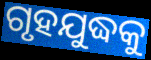
ଗୃହଯୁଦ୍ଧକୁ